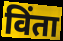
विंता